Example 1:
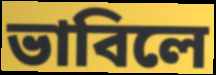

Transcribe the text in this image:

ভাবিলে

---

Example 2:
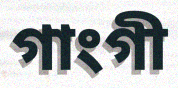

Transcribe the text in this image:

গাংগী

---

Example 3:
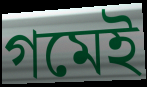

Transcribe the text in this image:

গমেই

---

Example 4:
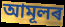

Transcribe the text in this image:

আমূলৰ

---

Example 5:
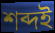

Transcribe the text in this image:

শব্দই